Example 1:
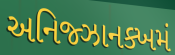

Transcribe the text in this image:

અનિજ્ઝાનક્ખમં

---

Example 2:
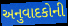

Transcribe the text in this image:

અનુવાદકોની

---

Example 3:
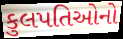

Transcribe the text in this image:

કુલપતિઓનો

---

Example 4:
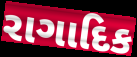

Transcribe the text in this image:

રાગાદિક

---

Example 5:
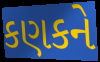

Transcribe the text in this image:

કણકને